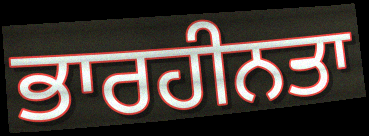
ਭਾਰਹੀਨਤਾ